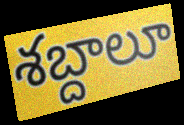
శబ్దాలూ